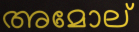
അമോല്